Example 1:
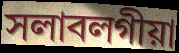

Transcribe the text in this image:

সলাবলগীয়া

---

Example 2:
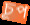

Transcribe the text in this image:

চূপ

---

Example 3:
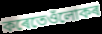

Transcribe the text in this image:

কৰেতেওঁলোকৰ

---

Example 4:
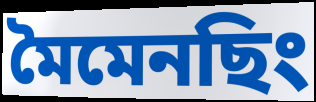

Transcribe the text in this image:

মৈমেনছিং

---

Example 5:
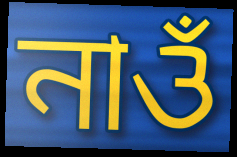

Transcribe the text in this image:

নাওঁ